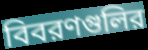
বিবরণগুলির